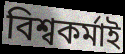
বিশ্বকর্মাই